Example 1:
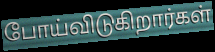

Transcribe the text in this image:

போய்விடுகிறார்கள்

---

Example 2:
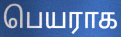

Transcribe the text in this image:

பெயராக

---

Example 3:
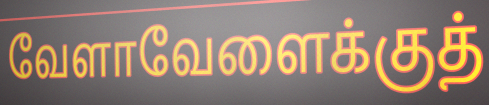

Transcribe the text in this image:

வேளாவேளைக்குத்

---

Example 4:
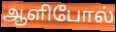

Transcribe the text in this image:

ஆளிபோல்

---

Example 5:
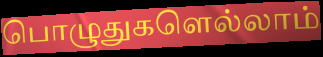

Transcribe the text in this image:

பொழுதுகளெல்லாம்